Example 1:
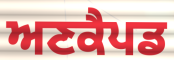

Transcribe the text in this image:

ਅਣਕੈਪਡ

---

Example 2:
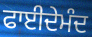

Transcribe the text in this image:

ਫਾਈਦੇਮੰਦ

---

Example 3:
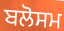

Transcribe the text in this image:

ਬਲੋਸਮ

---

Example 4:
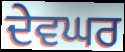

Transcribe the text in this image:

ਦੇਵਘਰ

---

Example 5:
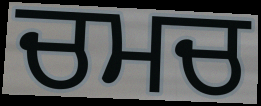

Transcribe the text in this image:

ਚਮਚ